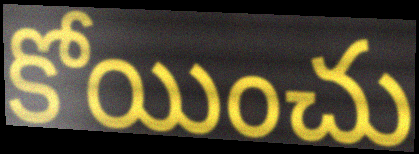
కోయించు